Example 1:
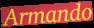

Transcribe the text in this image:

Armando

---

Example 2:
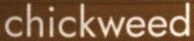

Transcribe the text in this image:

chickweed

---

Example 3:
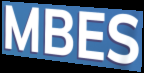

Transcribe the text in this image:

MBES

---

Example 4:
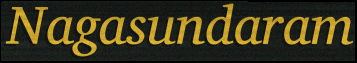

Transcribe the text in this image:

Nagasundaram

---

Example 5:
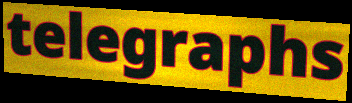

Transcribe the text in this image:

telegraphs